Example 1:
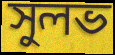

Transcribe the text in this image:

সুলভ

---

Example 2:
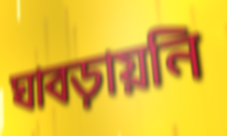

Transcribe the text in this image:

ঘাবড়ায়নি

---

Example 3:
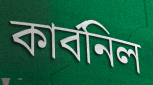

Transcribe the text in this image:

কার্বনিল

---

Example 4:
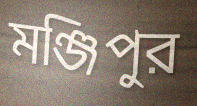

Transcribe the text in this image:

মঞ্জিপুর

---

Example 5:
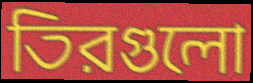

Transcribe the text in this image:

তিরগুলো